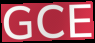
GCE